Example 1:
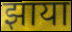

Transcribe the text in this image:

झाया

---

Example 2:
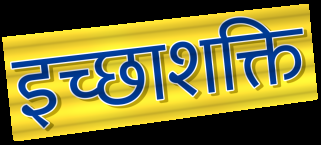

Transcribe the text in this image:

इच्छाशक्ति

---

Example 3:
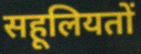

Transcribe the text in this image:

सहूलियतों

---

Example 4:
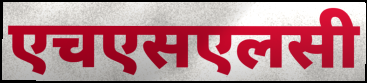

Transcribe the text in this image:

एचएसएलसी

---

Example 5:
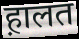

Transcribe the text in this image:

ह़ालत